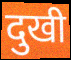
दुखी